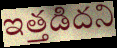
ఇత్తడిదని